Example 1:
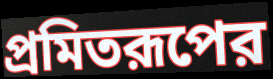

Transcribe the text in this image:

প্রমিতরূপের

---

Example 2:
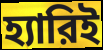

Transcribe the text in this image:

হ্যারিই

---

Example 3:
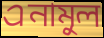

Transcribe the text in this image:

এনামুল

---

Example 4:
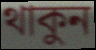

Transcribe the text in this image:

থাকুন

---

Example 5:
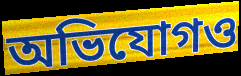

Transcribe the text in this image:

অভিযোগও